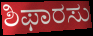
ಶಿಫಾರಸು